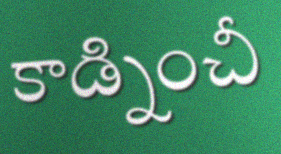
కాడ్నించీ